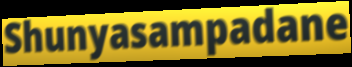
Shunyasampadane